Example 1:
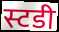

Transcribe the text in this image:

स्टडी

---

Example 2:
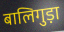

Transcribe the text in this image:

बालिगुड़ा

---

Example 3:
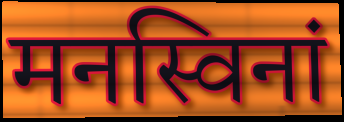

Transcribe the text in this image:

मनस्विनां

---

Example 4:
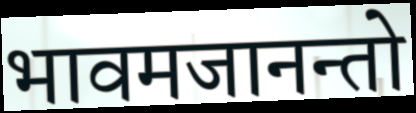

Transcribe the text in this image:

भावमजानन्तो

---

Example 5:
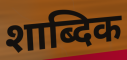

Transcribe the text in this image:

शाब्दिक